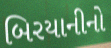
બિરયાનીનો